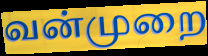
வன்முறை